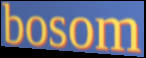
bosom